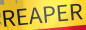
REAPER